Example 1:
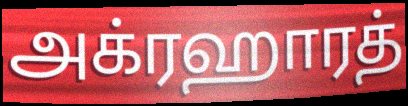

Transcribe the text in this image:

அக்ரஹாரத்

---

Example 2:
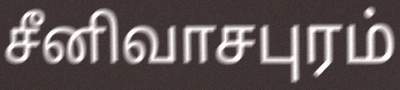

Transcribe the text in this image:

சீனிவாசபுரம்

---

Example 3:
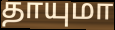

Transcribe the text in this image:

தாயுமா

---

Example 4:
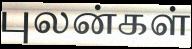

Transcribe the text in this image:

புலன்கள்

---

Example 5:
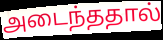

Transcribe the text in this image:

அடைந்ததால்